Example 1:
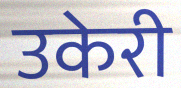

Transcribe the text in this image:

उकेरी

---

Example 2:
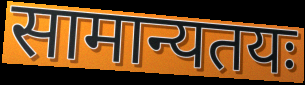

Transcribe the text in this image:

सामान्यतयः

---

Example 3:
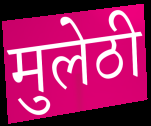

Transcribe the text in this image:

मुलेठी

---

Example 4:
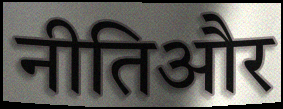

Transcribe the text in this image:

नीतिऔर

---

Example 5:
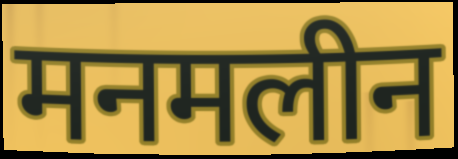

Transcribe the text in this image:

मनमलीन